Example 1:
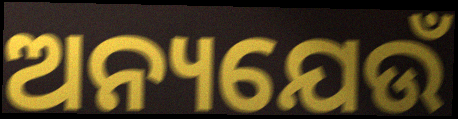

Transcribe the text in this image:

ଅନ୍ୟଯେଉଁ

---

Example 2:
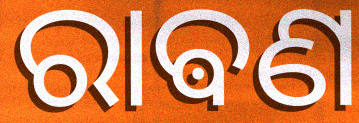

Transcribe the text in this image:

ରାଵଣ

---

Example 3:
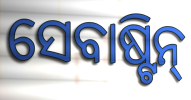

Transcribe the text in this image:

ସେବାଷ୍ଟିନ୍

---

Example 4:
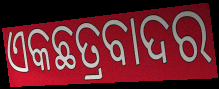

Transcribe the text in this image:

ଏକଛତ୍ରବାଦର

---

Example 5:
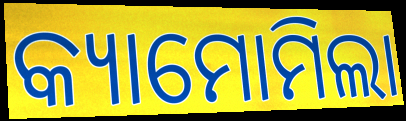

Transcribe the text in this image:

କ୍ୟାମୋମିଲା